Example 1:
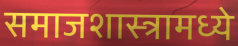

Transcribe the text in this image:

समाजशास्त्रामध्ये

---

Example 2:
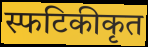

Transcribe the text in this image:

स्फटिकीकृत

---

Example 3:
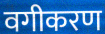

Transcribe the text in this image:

वगीकरण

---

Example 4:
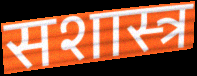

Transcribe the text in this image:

सशास्त्र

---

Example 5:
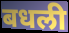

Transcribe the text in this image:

बधली